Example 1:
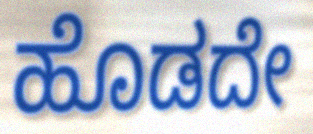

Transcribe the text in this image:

ಹೊಡದೇ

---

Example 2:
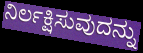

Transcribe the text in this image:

ನಿರ್ಲಕ್ಷಿಸುವುದನ್ನು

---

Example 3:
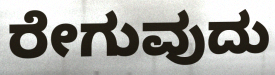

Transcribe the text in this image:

ರೇಗುವುದು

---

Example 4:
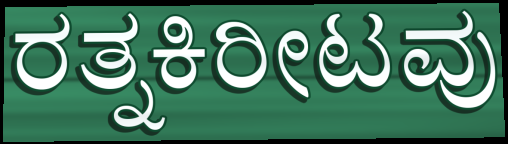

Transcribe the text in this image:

ರತ್ನಕಿರೀಟವು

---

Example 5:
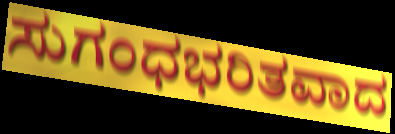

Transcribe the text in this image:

ಸುಗಂಧಭರಿತವಾದ